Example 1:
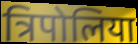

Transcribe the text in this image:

त्रिपोलिया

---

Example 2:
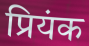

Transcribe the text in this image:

प्रियंक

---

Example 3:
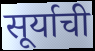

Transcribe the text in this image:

सूर्याची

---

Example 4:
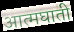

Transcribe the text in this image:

आत्मघाती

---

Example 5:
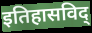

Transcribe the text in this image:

इतिहासविद्